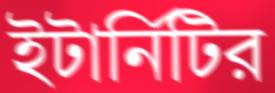
ইটার্নিটির